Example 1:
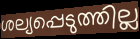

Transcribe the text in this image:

ശല്യപ്പെടുത്തില്ല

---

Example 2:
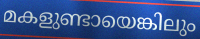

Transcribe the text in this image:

മകളുണ്ടായെങ്കിലും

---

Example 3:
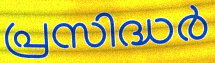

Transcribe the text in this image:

പ്രസിദ്ധർ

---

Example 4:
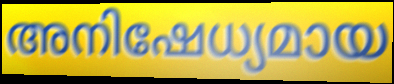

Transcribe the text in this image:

അനിഷേധ്യമായ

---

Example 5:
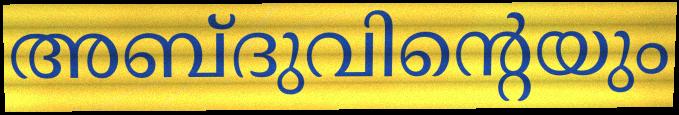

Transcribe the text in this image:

അബ്ദുവിന്റെയും